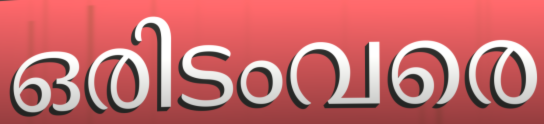
ഒരിടംവരെ